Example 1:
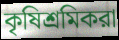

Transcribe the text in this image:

কৃষিশ্রমিকরা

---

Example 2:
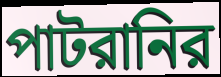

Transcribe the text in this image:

পাটরানির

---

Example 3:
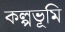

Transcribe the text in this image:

কল্পভূমি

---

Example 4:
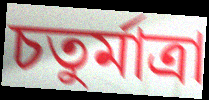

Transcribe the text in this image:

চতুর্মাত্রা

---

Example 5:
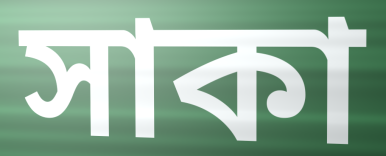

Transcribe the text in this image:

সাকা